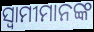
ସ୍ବାମୀମାନଙ୍କ